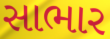
સાભાર